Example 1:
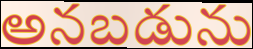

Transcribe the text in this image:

అనబడును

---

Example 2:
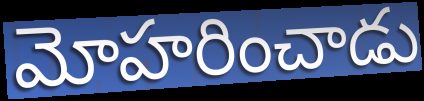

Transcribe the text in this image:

మోహరించాడు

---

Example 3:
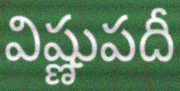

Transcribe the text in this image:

విష్ణుపదీ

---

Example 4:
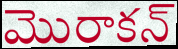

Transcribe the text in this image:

మొరాకన్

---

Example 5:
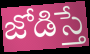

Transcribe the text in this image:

జోడిస్తే